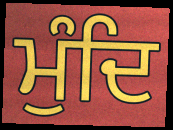
ਮੁੰਦਿ